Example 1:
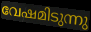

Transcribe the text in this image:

വേഷമിടുന്നു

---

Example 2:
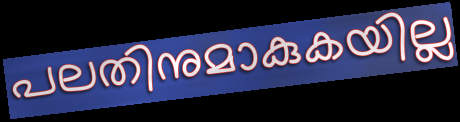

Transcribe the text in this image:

പലതിനുമാകുകയില്ല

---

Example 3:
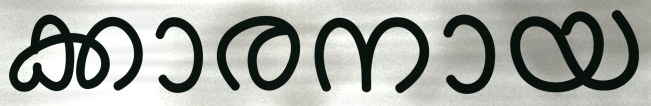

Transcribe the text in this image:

ക്കാരനായ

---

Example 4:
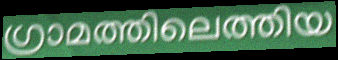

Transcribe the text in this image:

ഗ്രാമത്തിലെത്തിയ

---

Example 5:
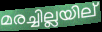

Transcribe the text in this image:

മരച്ചില്ലയില്